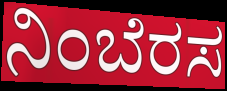
ನಿಂಬೆರಸ